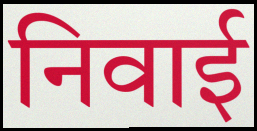
निवाई